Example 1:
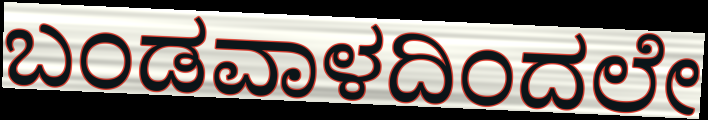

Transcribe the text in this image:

ಬಂಡವಾಳದಿಂದಲೇ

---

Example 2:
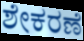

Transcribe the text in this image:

ಶೇಕರಣೆ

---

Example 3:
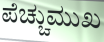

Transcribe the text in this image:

ಪೆಚ್ಚುಮುಖ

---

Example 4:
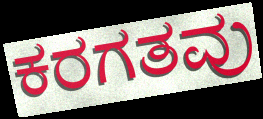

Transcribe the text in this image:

ಕರಗತವು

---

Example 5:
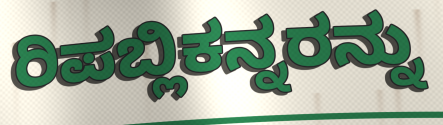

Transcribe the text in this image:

ರಿಪಬ್ಲಿಕನ್ನರನ್ನು